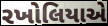
રખોલિયાએ